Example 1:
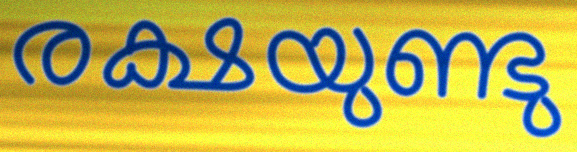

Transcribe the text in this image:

രക്ഷയുണ്ടു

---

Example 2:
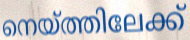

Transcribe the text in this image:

നെയ്ത്തിലേക്ക്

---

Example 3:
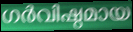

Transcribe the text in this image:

ഗർവിഷ്ഠമായ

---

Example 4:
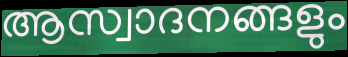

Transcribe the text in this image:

ആസ്വാദനങ്ങളും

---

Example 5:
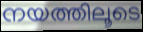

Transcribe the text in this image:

നയത്തിലൂടെ